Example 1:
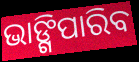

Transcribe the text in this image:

ଭାଙ୍ଗିପାରିବ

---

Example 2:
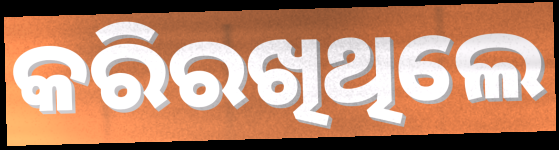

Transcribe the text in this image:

କରିରଖିଥିଲେ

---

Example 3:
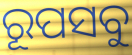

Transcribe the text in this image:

ରୂପସବୁ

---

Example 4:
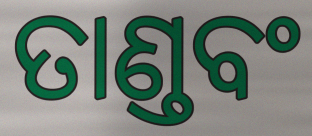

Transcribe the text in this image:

ତାଣ୍ଡବଂ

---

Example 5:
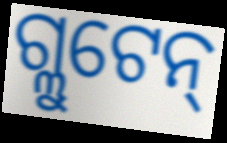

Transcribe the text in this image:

ଗ୍ଲୁଟେନ୍